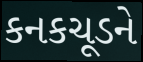
કનકચૂડને